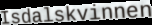
Isdalskvinnen